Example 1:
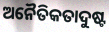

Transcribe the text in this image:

ଅନୈତିକତାଦୁଷ୍ଟ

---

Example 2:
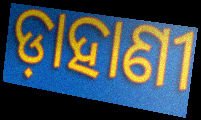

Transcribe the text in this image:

ଡ଼ାହାଣୀ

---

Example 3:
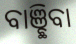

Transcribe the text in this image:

ବାଞ୍ଛିବା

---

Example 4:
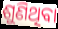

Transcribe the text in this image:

ଶୁଣିଥିବା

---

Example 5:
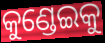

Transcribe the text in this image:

କୁଣ୍ଡେଇକୁ